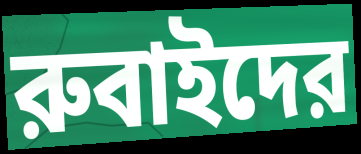
রুবাইদের